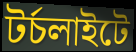
টর্চলাইটে